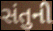
સંતુની